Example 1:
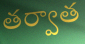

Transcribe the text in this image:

తర్వాత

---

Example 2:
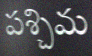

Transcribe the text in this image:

పశ్చిమ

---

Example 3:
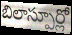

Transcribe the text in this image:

బిలాస్పూర్లో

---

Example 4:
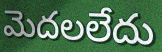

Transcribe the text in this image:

మెదలలేదు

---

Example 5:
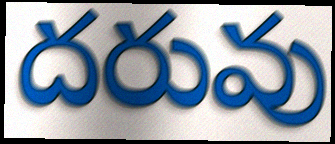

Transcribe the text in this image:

దరువు